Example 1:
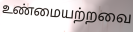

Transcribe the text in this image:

உண்மையற்றவை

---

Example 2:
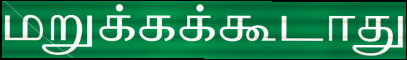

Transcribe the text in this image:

மறுக்கக்கூடாது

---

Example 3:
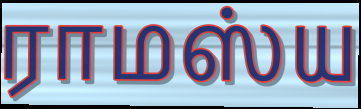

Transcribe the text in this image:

ராமஸ்ய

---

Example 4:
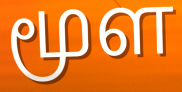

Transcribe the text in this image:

மூள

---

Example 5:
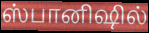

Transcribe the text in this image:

ஸ்பானிஷில்